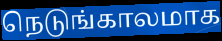
நெடுங்காலமாக